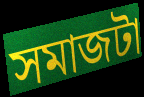
সমাজটা